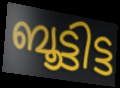
ബൂട്ടിട്ട